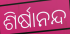
ଶିର୍ଷାନନ୍ଦ